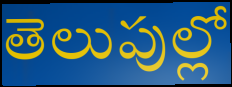
తెలుపుల్లో